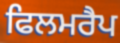
ਫਿਲਮਰੈਪ